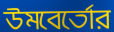
উমবের্তোর